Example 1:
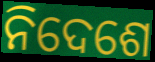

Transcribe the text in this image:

ନିଦେଶେ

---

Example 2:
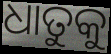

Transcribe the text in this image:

ଧାତୁକୁ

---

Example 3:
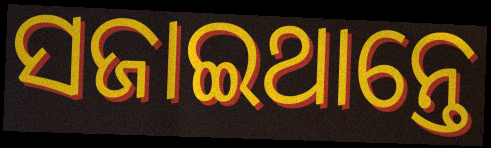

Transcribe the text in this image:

ସଜାଇଥାନ୍ତେ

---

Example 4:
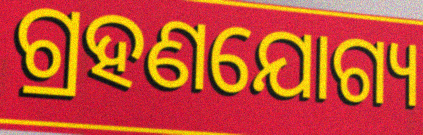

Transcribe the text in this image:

ଗ୍ରହଣଯୋଗ୍ୟ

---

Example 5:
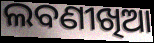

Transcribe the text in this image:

ଲବଣୀଖିଆ